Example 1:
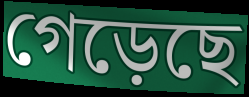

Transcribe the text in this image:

গেড়েছে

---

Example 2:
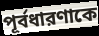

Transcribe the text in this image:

পূর্বধারণাকে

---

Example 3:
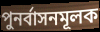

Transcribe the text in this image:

পুনর্বাসনমূলক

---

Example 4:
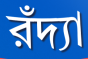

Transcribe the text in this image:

রঁদ্যা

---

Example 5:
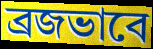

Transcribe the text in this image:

ব্রজভাবে